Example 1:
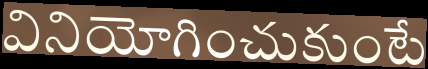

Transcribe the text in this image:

వినియోగించుకుంటే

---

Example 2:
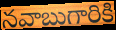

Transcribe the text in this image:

నవాబుగారికి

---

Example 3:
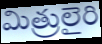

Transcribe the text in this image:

మిత్రులైరి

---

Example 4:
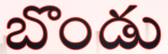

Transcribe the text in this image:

బొండు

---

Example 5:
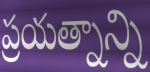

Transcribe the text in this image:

ప్రయత్నాన్ని